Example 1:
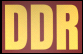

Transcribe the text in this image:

DDR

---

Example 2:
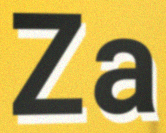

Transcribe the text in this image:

Za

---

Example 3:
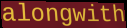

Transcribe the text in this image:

alongwith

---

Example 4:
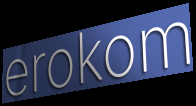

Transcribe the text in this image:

erokom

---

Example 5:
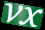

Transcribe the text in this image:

vx